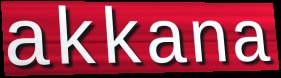
akkana